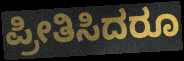
ಪ್ರೀತಿಸಿದರೂ